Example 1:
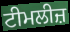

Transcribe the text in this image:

ਟੀਮਲੀਜ਼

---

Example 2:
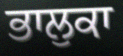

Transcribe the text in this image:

ਭਾਲੁਕਾ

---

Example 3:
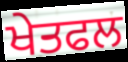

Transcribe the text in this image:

ਖੇਤਫਲ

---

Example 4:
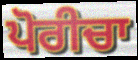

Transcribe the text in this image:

ਪੋਰੀਚਾ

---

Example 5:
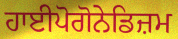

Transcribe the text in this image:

ਹਾਈਪੋਗੋਨੇਡਿਜ਼ਮ